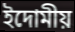
ইদোমীয়